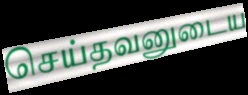
செய்தவனுடைய